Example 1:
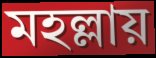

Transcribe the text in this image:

মহল্লায়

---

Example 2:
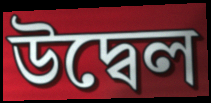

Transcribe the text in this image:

উদ্বেল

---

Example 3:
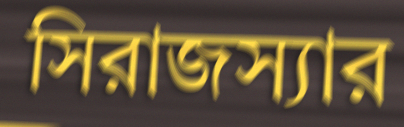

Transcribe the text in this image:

সিরাজস্যার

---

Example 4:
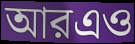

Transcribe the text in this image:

আরএও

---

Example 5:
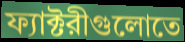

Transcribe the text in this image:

ফ্যাক্টরীগুলোতে